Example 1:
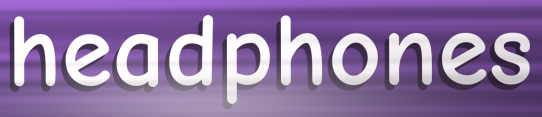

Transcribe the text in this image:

headphones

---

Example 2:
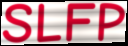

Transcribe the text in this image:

SLFP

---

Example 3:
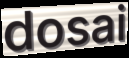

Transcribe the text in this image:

dosai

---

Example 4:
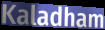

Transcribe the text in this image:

Kaladham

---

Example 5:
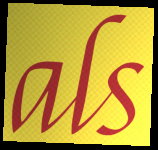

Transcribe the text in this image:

als